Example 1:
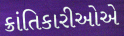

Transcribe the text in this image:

ક્રાંતિકારીઓએ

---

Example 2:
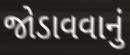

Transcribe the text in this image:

જોડાવવાનું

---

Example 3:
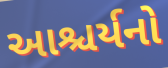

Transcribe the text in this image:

આશ્ચર્યનો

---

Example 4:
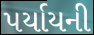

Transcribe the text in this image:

પર્યાયની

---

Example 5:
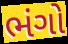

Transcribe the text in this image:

ભંગો